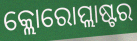
କ୍ଲୋରୋପ୍ଲାଷ୍ଟର